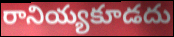
రానియ్యకూడదు